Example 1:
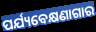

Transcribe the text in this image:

ପର୍ଯ୍ୟବେକ୍ଷଣାଗାର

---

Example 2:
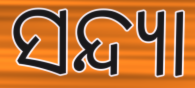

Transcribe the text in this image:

ସନ୍ଦ୍ୟା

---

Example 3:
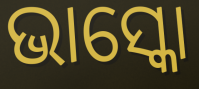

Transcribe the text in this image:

ଭାସ୍କୋ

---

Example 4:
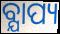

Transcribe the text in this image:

ବ୍ଯାପ୍ୟ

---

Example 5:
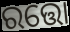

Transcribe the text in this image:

ରତ୍ତୋ